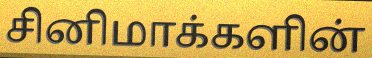
சினிமாக்களின்